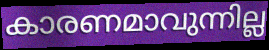
കാരണമാവുന്നില്ല